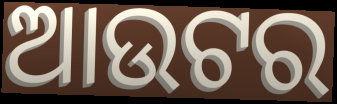
ଆଉଟର